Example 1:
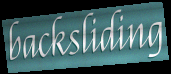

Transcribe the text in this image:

backsliding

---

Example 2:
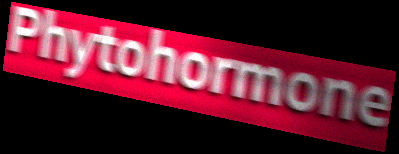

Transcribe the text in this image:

Phytohormone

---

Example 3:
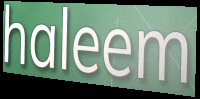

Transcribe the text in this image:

haleem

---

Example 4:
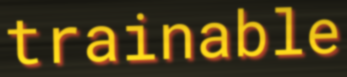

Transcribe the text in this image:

trainable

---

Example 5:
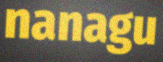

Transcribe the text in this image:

nanagu